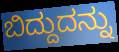
ಬಿದ್ದುದನ್ನು